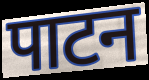
पाटन